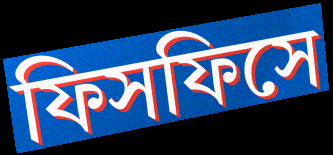
ফিসফিসে